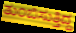
ತುಂಬಿಸುತ್ತಿದ್ದ